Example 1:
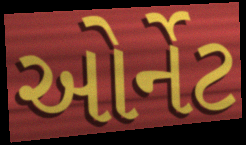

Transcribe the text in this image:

ઓર્નેટ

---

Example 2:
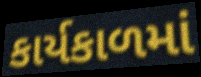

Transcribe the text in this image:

કાર્યકાળમાં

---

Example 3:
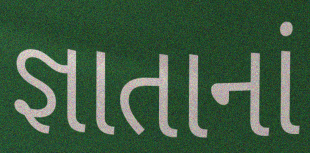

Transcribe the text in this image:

જ્ઞાતાનાં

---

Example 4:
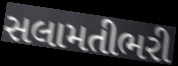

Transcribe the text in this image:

સલામતીભરી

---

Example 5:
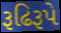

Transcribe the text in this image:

રૂઢિરૂપે